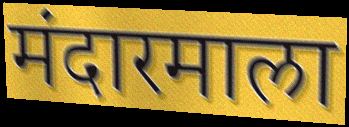
मंदारमाला